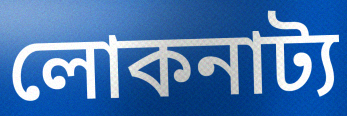
লোকনাট্য